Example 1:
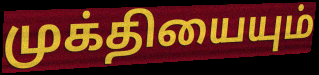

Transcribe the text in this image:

முக்தியையும்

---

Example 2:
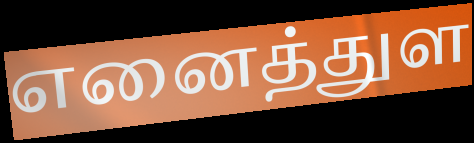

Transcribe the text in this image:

எனைத்துள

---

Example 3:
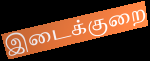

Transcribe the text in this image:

இடைக்குறை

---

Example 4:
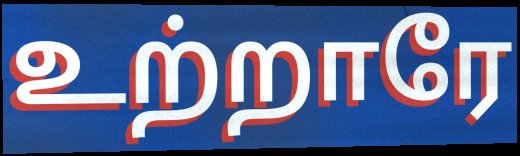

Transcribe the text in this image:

உற்றாரே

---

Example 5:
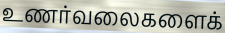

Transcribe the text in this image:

உணர்வலைகளைக்